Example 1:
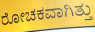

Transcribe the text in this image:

ರೋಚಕವಾಗಿತ್ತು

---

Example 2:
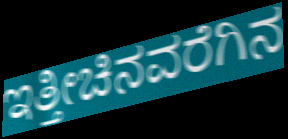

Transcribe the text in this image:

ಇತ್ತೀಚಿನವರೆಗಿನ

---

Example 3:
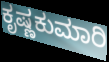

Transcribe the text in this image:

ಕೃಷ್ಣಕುಮಾರಿ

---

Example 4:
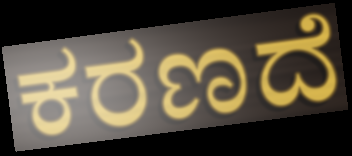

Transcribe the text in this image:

ಕರಣದೆ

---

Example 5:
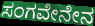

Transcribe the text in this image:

ಸಂಗವೇನೇನ